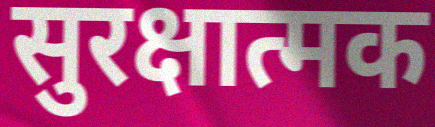
सुरक्षात्मक